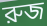
রুজ